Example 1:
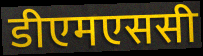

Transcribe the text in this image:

डीएमएससी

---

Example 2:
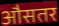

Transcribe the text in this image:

औसतर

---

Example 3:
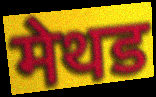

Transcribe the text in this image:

मेथड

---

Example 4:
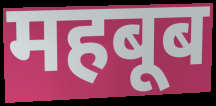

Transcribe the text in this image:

महबूब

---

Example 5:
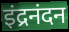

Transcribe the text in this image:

इंद्रनंदन